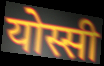
योस्सी